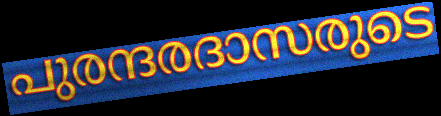
പുരന്ദരദാസരുടെ